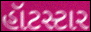
હૉટસ્ટાર